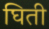
घिती